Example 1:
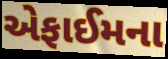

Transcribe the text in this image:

એફાઈમના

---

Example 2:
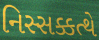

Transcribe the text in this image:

નિસ્સક્કત્થે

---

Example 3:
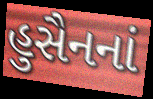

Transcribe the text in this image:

હુસૈનનાં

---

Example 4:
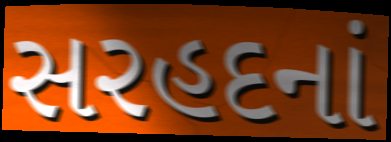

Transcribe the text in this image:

સરહદનાં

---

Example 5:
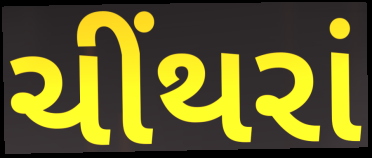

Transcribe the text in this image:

ચીંથરાં